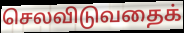
செலவிடுவதைக்